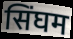
सिंघम